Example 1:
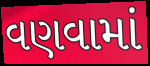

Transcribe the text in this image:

વણવામાં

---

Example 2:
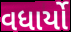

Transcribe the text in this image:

વધાર્યો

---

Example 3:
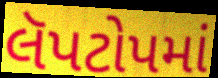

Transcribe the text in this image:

લૅપટોપમાં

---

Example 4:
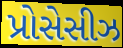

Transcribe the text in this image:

પ્રોસેસીઝ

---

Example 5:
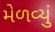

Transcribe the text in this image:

મેળવ્યું